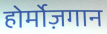
होर्मोज़गान